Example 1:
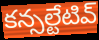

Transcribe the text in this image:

కన్సల్టేటివ్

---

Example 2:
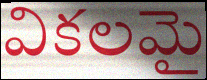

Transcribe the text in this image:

వికలమై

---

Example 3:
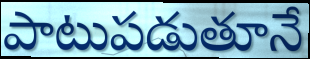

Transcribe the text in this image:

పాటుపడుతూనే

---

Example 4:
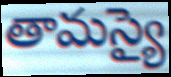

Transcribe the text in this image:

తామస్యై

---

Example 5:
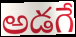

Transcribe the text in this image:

అడగే